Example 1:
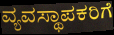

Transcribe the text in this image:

ವ್ಯವಸ್ಥಾಪಕರಿಗೆ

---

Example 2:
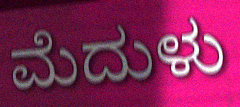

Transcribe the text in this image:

ಮೆದುಳು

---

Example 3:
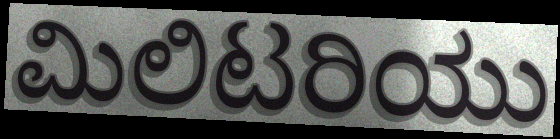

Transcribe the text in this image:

ಮಿಲಿಟರಿಯು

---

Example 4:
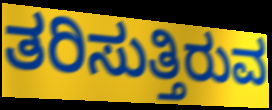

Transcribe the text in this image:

ತರಿಸುತ್ತಿರುವ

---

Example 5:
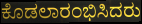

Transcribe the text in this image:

ಕೊಡಲಾರಂಭಿಸಿದರು